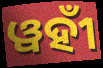
ୱହୀଁ